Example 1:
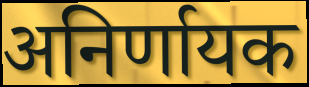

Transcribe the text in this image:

अनिर्णायक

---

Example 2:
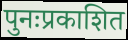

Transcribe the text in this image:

पुनःप्रकाशित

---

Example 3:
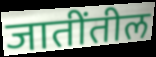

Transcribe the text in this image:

जातींतील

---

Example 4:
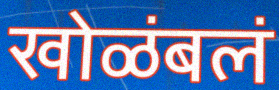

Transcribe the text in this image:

खोळंबलं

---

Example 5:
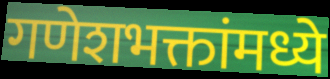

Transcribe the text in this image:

गणेशभक्तांमध्ये